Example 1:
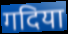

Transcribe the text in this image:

गदिया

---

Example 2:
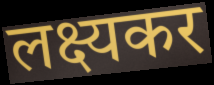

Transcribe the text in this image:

लक्ष्यकर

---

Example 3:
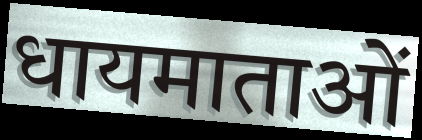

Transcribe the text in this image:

धायमाताओं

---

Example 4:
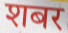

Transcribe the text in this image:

शबर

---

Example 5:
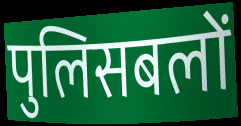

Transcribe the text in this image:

पुलिसबलों